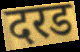
दरड